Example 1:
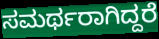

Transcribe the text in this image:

ಸಮರ್ಥರಾಗಿದ್ದರೆ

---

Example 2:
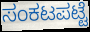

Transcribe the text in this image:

ಸಂಕಟಪಟ್ಟೆ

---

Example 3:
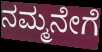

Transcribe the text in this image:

ನಮ್ಮನೇಗೆ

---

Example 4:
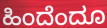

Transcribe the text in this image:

ಹಿಂದೆಂದೂ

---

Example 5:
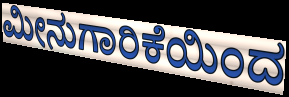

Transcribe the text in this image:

ಮೀನುಗಾರಿಕೆಯಿಂದ